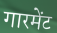
गारमेंट